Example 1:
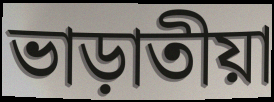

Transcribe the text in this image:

ভাড়াতীয়া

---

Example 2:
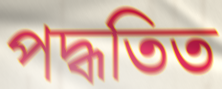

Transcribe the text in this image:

পদ্ধতিত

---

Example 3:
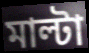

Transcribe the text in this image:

মাল্টা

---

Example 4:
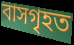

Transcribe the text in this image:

বাসগৃহত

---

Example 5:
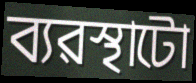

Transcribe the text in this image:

ব্যৱস্থাটো